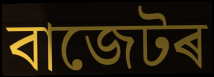
বাজেটৰ